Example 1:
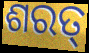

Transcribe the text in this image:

ଶରତ୍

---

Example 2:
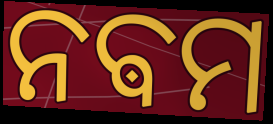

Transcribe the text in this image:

ନଵମ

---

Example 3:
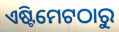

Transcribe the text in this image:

ଏଷ୍ଟିମେଟଠାରୁ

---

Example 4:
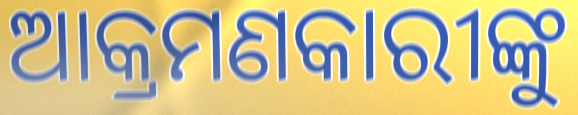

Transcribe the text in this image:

ଆକ୍ରମଣକାରୀଙ୍କୁ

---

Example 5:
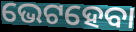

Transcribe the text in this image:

ଭେଟହେବା